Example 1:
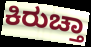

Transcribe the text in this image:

ಕಿರುಚ್ತಾ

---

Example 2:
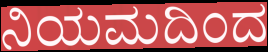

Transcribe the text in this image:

ನಿಯಮದಿಂದ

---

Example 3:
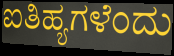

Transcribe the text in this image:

ಐತಿಹ್ಯಗಳೆಂದು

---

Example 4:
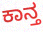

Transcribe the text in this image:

ಕಾನ್ತ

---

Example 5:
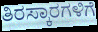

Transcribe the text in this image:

ತಿರಸ್ಕಾರಗಳಿಗೆ